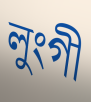
লুংগী